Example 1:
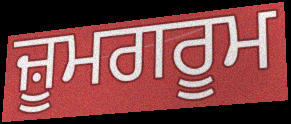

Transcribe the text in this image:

ਜ਼ੂਮਗਰੂਮ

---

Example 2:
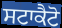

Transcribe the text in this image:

ਸਟਾਕੈਟੋ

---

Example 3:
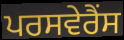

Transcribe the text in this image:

ਪਰਸਵੇਰੈਂਸ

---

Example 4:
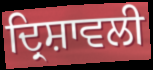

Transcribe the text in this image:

ਦ੍ਰਿਸ਼ਾਵਲੀ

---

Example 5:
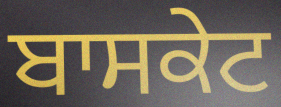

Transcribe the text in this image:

ਬਾਸਕੇਟ